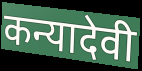
कन्यादेवी